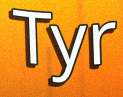
Tyr